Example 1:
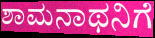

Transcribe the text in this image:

ಶಾಮನಾಥನಿಗೆ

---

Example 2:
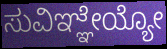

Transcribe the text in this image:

ಸುವಿಞ್ಞೇಯ್ಯೋ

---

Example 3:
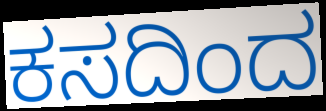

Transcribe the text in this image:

ಕಸದಿಂದ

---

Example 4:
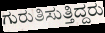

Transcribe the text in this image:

ಗುರುತಿಸುತ್ತಿದ್ದರು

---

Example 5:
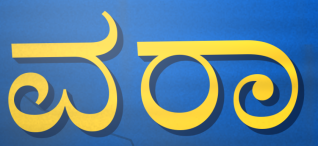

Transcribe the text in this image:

ವರಾ